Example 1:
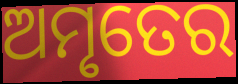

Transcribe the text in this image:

ଅମୃତେର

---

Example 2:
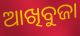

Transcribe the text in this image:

ଆଖିବୁଜା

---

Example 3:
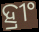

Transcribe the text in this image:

ହ୍ରୀଂ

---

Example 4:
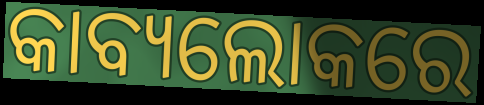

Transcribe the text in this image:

କାବ୍ୟଲୋକରେ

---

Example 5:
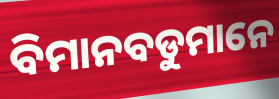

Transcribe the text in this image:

ବିମାନବଡୁମାନେ